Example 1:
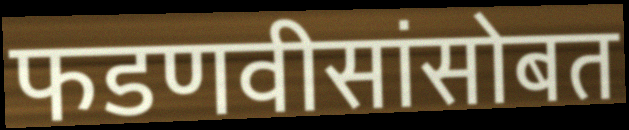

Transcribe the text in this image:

फडणवीसांसोबत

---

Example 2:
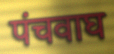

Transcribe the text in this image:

पंचवाघ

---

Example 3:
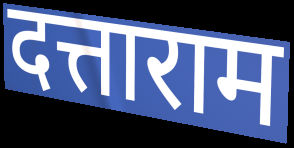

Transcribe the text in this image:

दत्ताराम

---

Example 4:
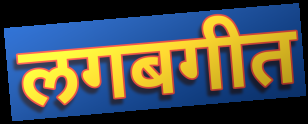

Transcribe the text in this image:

लगबगीत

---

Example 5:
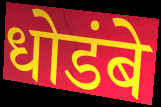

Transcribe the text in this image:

धोडंबे